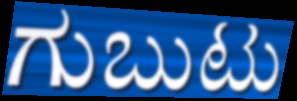
ಗುಬುಟು